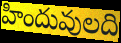
హిందువులది